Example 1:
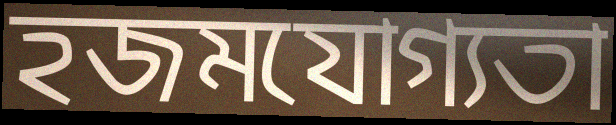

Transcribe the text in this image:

হজমযোগ্যতা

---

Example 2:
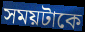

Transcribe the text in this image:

সময়টাকে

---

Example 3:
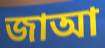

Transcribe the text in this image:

জাআ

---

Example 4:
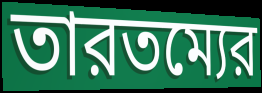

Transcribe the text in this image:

তারতম্যের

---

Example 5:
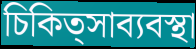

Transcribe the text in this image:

চিকিত্সাব্যবস্থা